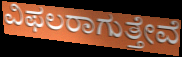
ವಿಫಲರಾಗುತ್ತೇವೆ